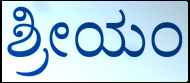
ಶ್ರೀಯಂ